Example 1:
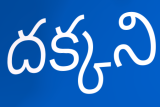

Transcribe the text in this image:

దక్కని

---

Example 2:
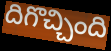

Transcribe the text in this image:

దిగొచ్చింది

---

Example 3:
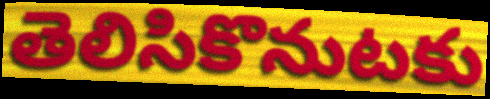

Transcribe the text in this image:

తెలిసికొనుటకు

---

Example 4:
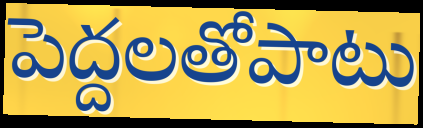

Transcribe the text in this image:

పెద్దలతోపాటు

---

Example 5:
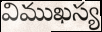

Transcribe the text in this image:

విముఖస్య